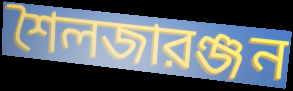
শৈলজারঞ্জন